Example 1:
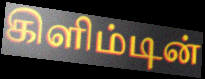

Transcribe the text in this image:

கிளிம்டின்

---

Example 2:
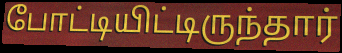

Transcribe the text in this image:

போட்டியிட்டிருந்தார்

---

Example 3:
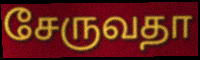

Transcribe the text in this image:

சேருவதா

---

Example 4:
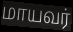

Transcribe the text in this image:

மாயவர்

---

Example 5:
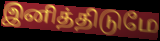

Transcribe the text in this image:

இனித்திடுமே